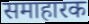
समाहारक